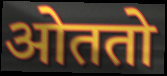
ओततो